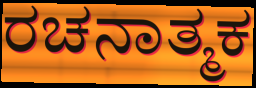
ರಚನಾತ್ಮಕ